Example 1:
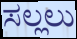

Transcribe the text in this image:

ಸಲ್ಲಲು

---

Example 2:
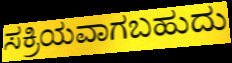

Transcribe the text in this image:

ಸಕ್ರಿಯವಾಗಬಹುದು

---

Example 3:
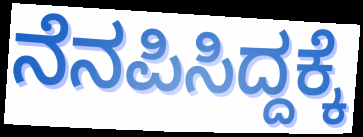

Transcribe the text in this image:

ನೆನಪಿಸಿದ್ದಕ್ಕೆ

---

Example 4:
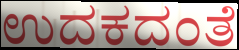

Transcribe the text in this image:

ಉದಕದಂತೆ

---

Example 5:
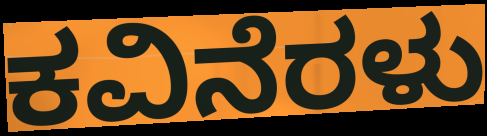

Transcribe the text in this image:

ಕವಿನೆರಳು